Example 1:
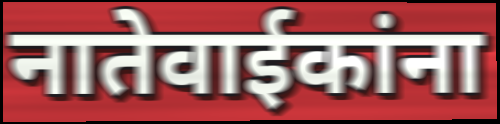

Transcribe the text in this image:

नातेवाईकांना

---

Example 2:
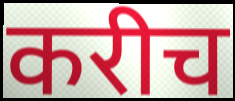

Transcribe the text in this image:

करीच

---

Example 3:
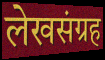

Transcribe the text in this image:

लेखसंग्रह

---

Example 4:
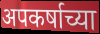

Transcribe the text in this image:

अपकर्षाच्या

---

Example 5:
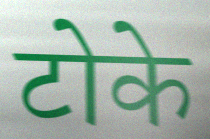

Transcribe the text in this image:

टोके